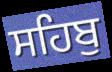
ਸਹਿਬੁ